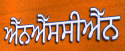
ਐੱਨਐੱਸਸੀਐੱਨ